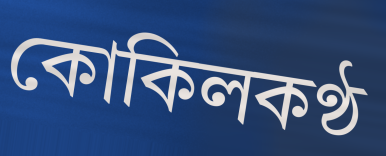
কোকিলকণ্ঠ